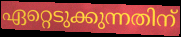
ഏറ്റെടുക്കുന്നതിന്